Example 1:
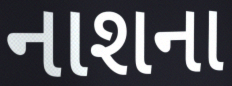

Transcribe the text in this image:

નાશના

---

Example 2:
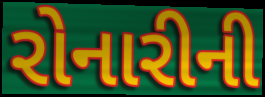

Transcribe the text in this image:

રોનારીની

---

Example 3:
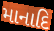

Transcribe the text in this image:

માનાદિ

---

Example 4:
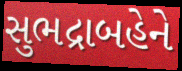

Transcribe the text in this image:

સુભદ્રાબહેને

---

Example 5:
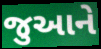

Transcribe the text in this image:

જુઆને